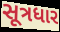
સૂત્રધાર